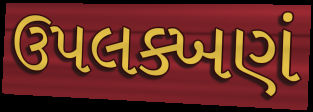
ઉપલક્ખણં